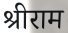
श्रीराम